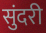
सुंदरी